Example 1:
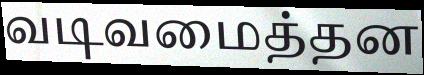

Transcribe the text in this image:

வடிவமைத்தன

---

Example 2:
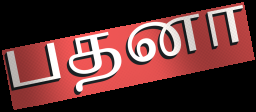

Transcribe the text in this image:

பதனா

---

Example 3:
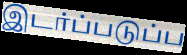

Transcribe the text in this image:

இடர்ப்படுப்ப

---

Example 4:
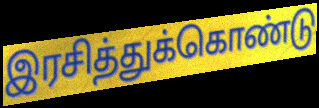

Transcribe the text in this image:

இரசித்துக்கொண்டு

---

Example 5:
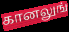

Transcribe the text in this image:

கானலுங்